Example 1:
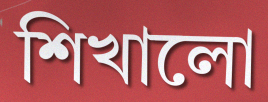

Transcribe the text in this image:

শিখালো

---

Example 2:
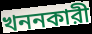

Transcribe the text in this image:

খননকারী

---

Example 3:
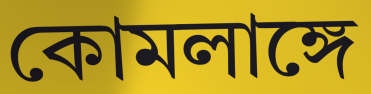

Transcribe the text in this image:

কোমলাঙ্গে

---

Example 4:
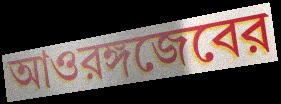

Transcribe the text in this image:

আওরঙ্গজেবের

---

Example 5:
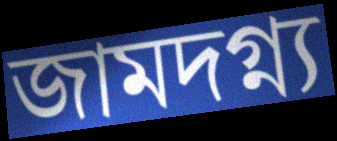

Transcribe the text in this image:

জামদগ্ন্য